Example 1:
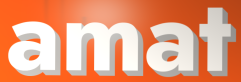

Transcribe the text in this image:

amat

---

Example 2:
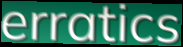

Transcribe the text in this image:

erratics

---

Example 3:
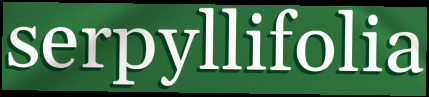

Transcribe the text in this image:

serpyllifolia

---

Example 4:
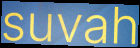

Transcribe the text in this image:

suvah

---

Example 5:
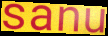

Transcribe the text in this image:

sanu